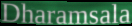
Dharamsala